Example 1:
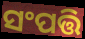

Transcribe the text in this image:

ସଂପତ୍ତି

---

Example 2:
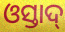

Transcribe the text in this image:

ଓସ୍ତାଦ୍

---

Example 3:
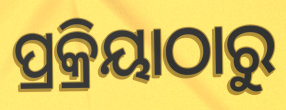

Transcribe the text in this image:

ପ୍ରକ୍ରିୟାଠାରୁ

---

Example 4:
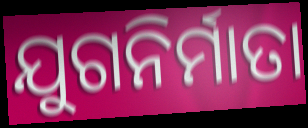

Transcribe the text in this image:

ଯୁଗନିର୍ମାତା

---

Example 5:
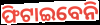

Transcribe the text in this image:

ଫିଟାଇବେନି